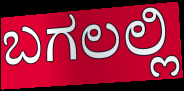
ಬಗಲಲ್ಲಿ